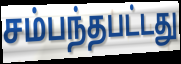
சம்பந்தபட்டது